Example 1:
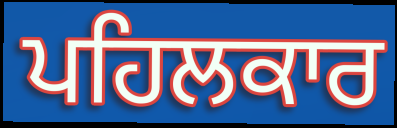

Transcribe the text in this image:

ਪਹਿਲਕਾਰ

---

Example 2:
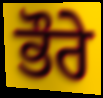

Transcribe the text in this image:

ਭੌਰੇ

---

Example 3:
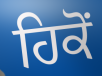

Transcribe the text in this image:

ਹਿਕੋਂ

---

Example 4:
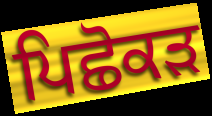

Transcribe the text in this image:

ਪਿਛੋਕੜ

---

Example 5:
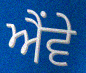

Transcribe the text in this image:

ਐਂਵੇ